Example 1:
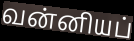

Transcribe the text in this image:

வன்னியப்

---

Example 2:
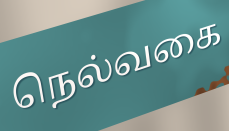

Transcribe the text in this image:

நெல்வகை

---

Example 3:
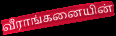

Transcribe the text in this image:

வீராங்கனையின்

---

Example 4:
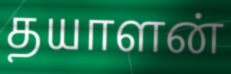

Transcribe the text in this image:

தயாளன்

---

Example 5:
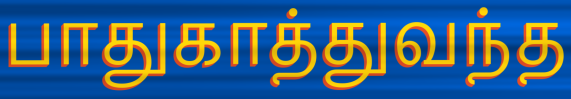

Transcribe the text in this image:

பாதுகாத்துவந்த